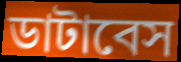
ডাটাবেস